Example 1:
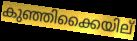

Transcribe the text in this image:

കുഞ്ഞിക്കൈയില്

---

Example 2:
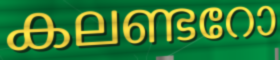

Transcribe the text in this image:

കലണ്ടറോ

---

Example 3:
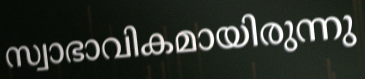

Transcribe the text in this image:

സ്വാഭാവികമായിരുന്നു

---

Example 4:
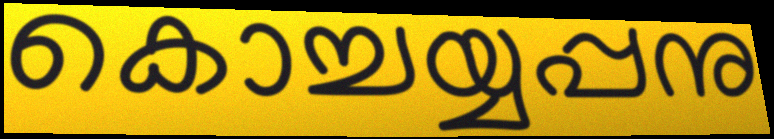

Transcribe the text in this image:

കൊച്ചയ്യപ്പനു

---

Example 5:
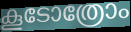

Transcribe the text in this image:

കൂടോത്രോം